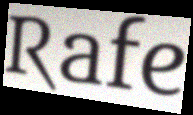
Rafe